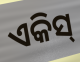
ଏକିସ୍